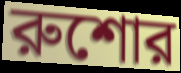
রুশোর